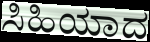
ಸಿಹಿಯಾದ